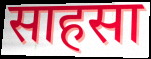
साहसा